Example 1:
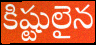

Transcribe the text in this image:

కిష్టులైన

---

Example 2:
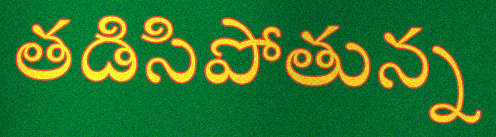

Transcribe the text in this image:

తడిసిపోతున్న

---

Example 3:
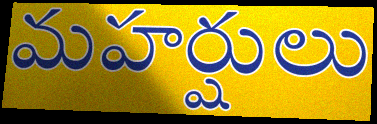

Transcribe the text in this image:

మహర్షులు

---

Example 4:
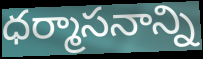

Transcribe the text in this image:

ధర్మాసనాన్ని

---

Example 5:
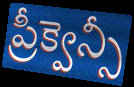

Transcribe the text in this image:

ప్రీక్వెన్సీ